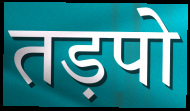
तड़पो